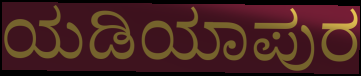
ಯಡಿಯಾಪುರ